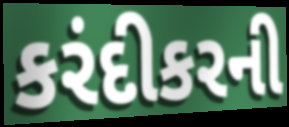
કરંદીકરની